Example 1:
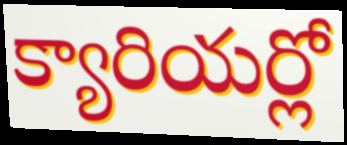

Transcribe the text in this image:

క్యారియర్లో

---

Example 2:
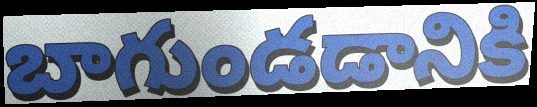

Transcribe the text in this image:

బాగుండడానికి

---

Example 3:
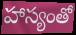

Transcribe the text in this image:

హాస్యంతో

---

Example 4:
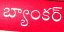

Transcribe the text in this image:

బ్యాంకర్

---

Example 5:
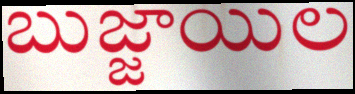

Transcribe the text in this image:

బుజ్జాయిల